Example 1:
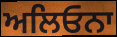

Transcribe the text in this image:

ਅਲਿਓਨਾ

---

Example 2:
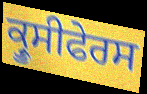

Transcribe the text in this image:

ਕ੍ਰੂਸੀਫੇਰਸ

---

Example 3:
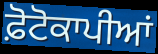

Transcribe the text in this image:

ਫ਼ੋਟੋਕਾਪੀਆਂ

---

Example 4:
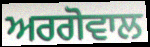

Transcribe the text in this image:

ਅਰਗੋਵਾਲ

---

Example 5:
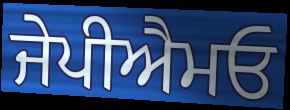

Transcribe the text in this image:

ਜੇਪੀਐਮਓ